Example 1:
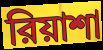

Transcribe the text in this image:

রিয়াশা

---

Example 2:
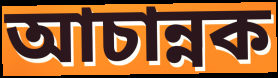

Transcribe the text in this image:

আচান্নক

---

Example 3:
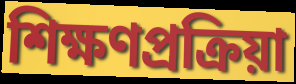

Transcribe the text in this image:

শিক্ষণপ্রক্রিয়া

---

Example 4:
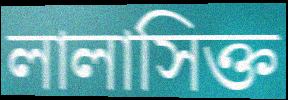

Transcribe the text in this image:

লালাসিক্ত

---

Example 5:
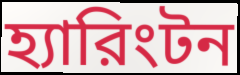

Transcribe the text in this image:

হ্যারিংটন